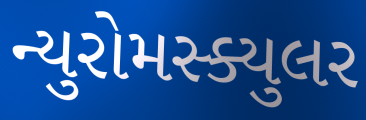
ન્યુરોમસ્ક્યુલર